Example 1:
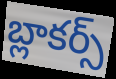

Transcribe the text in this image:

బ్లాకర్స్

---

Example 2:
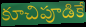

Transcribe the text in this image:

కూచిపూడికే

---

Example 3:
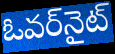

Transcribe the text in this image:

ఓవర్‌నైట్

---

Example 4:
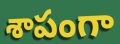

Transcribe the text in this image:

శాపంగా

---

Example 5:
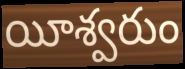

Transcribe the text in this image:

యీశ్వరుం